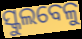
ସ୍କୁଲବେଳୁ